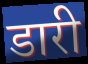
डारी